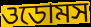
ওডোমস